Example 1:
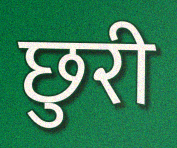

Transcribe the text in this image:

छुरी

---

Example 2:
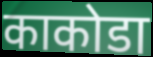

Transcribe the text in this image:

काकोडा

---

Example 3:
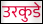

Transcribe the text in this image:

उरकुडे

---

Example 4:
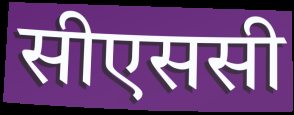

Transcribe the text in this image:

सीएससी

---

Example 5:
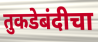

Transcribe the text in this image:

तुकडेबंदीचा